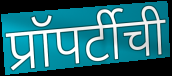
प्रॉपर्टीची